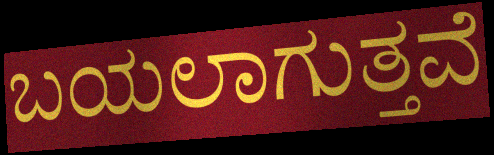
ಬಯಲಾಗುತ್ತವೆ